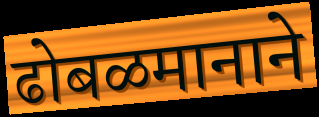
ढोबळमानाने